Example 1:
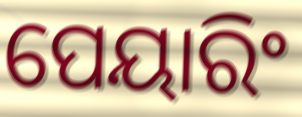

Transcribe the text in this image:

ପେୟାରିଂ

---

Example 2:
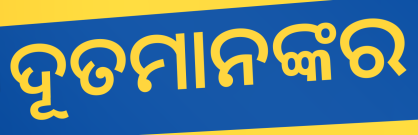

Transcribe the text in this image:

ଦୂତମାନଙ୍କର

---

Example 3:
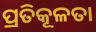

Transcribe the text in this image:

ପ୍ରତିକୂଳତା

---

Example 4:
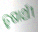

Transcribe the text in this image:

ତୃଷାର୍ଥୀ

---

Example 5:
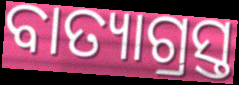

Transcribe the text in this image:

ବାତ୍ୟାଗ୍ରସ୍ତ